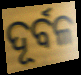
ଦୂର୍ବଳ